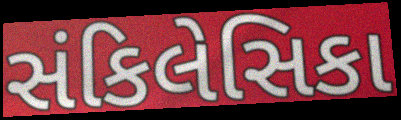
સંકિલેસિકા